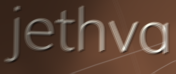
jethva